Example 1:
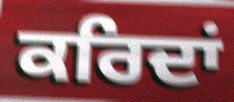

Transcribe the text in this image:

ਕਰਿਦਾਂ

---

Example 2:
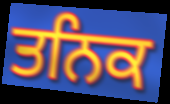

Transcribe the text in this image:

ਤਨਿਕ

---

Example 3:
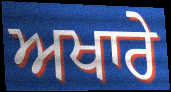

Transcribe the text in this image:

ਅਖਾਰੇ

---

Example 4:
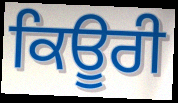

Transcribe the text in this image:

ਕਿਊਰੀ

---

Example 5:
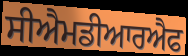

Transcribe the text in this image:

ਸੀਐਮਡੀਆਰਐਫ